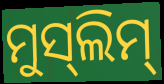
ମୁସ୍‌ଲିମ୍